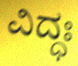
ವಿದ್ಧಃ